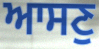
ਆਸਣੁ